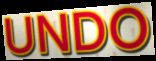
UNDO